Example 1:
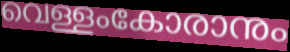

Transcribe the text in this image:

വെള്ളംകോരാനും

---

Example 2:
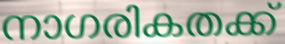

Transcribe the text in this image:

നാഗരികതക്ക്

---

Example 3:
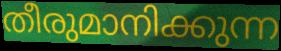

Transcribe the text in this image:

തീരുമാനിക്കുന്ന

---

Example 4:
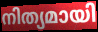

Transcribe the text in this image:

നിത്യമായി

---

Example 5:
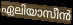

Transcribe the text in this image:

ഏലിയാസീൻ